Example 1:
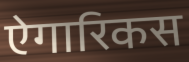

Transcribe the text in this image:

ऐगारिकस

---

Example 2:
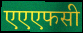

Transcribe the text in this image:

एएएफसी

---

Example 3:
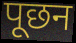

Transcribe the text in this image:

पूछन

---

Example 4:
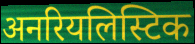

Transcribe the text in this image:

अनरियलिस्टिक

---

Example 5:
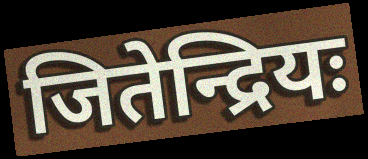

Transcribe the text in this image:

जितेन्द्रियः